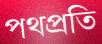
পথপ্রতি